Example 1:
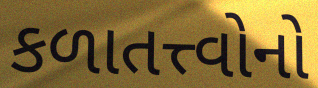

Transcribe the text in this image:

કળાતત્ત્વોનો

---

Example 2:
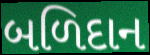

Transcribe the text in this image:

બળિદાન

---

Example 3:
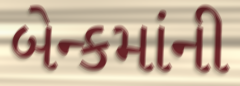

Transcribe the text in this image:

બેન્કમાંની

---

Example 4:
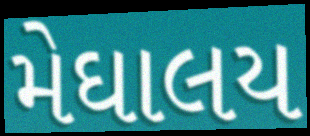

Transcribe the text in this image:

મેઘાલય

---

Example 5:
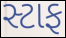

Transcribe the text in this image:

સ્ટાફ